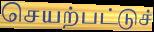
செயற்பட்டுச்